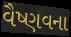
વૈષ્ણવના